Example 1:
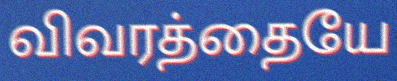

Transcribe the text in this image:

விவரத்தையே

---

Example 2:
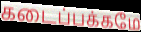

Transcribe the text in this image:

கடைப்பக்கமே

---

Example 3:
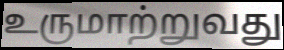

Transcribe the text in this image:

உருமாற்றுவது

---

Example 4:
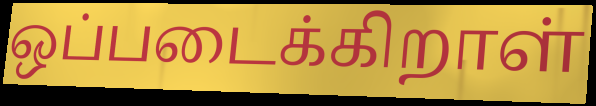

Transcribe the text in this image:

ஒப்படைக்கிறாள்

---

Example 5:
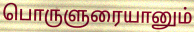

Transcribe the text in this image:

பொருளுரையானும்